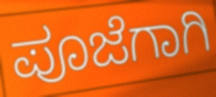
ಪೂಜೆಗಾಗಿ